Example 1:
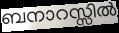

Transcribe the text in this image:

ബനാറസ്സിൽ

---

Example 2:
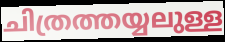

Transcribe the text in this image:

ചിത്രത്തയ്യലുള്ള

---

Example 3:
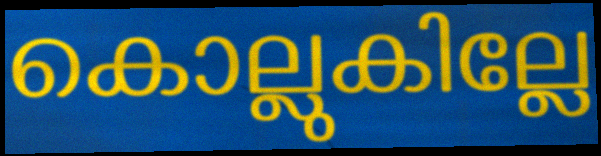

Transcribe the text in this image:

കൊല്ലുകില്ലേ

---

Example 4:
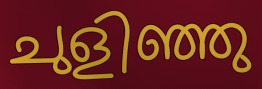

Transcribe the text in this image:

ചുളിഞ്ഞു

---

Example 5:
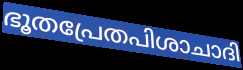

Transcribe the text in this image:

ഭൂതപ്രേതപിശാചാദി